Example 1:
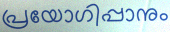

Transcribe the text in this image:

പ്രയോഗിപ്പാനും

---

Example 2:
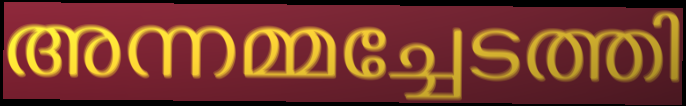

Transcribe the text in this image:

അന്നമ്മച്ചേടത്തി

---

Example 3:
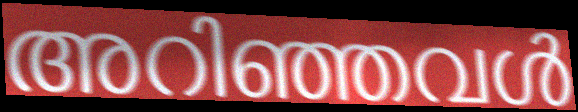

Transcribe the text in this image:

അറിഞ്ഞവൾ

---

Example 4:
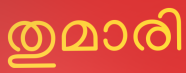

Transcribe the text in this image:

തുമാരി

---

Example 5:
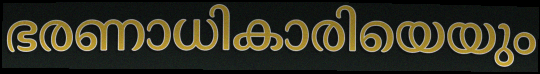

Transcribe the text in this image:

ഭരണാധികാരിയെയും